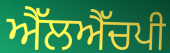
ਐੱਲਐੱਚਪੀ